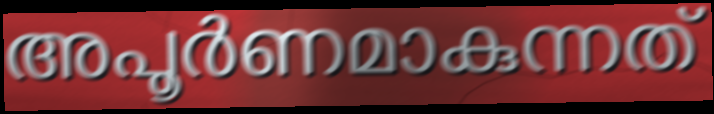
അപൂർണമാകുന്നത്